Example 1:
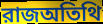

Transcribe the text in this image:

রাজঅতিথি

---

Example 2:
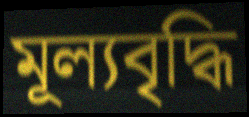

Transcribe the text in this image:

মূল্যবৃদ্ধি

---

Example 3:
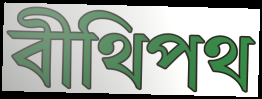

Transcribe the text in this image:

বীথিপথ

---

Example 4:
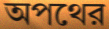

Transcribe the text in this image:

অপথের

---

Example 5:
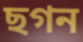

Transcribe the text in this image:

ছগন